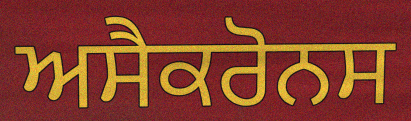
ਅਸੈਕਰੋਨਸ